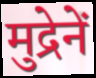
मुद्रेनें